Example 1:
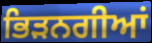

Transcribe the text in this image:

ਭਿੜਨਗੀਆਂ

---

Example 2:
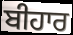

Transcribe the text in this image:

ਬੀਹਾਰ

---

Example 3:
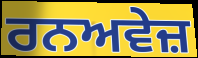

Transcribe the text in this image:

ਰਨਅਵੇਜ਼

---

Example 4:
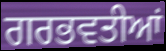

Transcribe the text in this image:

ਗਰਭਵਤੀਆਂ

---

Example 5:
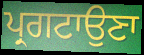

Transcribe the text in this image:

ਪ੍ਰਗਟਾਉਣਾ